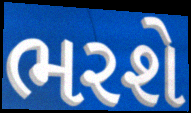
ભરશે